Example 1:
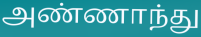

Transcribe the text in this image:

அண்ணாந்து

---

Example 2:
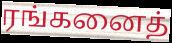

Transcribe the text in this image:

ரங்கனைத்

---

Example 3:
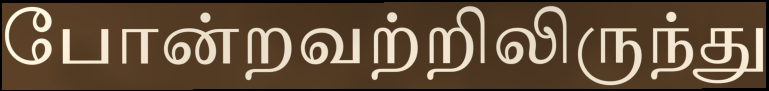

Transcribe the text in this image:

போன்றவற்றிலிருந்து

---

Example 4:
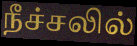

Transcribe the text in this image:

நீச்சலில்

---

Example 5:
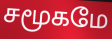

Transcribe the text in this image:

சமூகமே